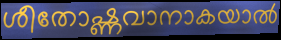
ശീതോഷ്ണവാനാകയാൽ